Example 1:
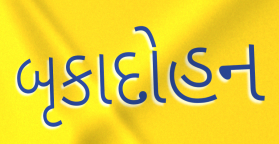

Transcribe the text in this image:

બૃકાદોહન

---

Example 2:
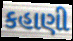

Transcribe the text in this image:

કહાણી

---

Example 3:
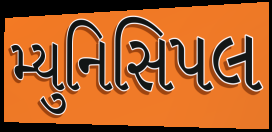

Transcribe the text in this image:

મ્યુનિસિપલ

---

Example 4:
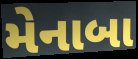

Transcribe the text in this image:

મેનાબા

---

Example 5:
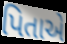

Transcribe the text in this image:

પિતાએ